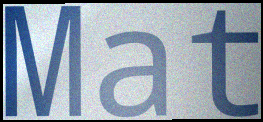
Mat